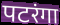
पटरंगा